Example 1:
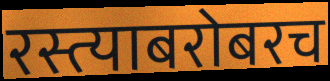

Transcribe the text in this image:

रस्त्याबरोबरच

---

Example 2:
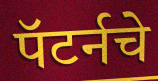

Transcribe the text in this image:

पॅटर्नचे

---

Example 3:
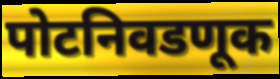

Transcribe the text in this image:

पोटनिवडणूक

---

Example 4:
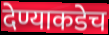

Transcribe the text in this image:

देण्याकडेच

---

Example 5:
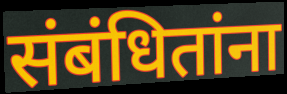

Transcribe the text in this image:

संबंधितांना